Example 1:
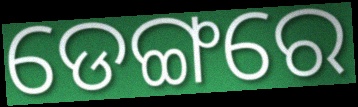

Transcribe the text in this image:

ଡେଙ୍ଗରେ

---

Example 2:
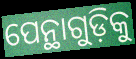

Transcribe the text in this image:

ପେନ୍ଥାଗୁଡ଼ିକୁ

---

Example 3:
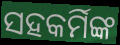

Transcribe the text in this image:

ସହକର୍ମିଙ୍କ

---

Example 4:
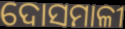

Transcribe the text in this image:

ଦୋସମାଳୀ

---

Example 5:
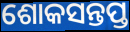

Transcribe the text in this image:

ଶୋକସନ୍ତପ୍ତ